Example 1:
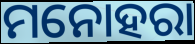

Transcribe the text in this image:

ମନୋହରା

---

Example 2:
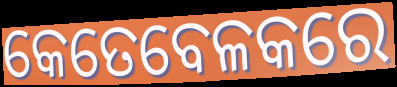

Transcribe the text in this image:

କେତେବେଳକରେ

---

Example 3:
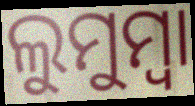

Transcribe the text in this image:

ଲୁମୁମ୍ବା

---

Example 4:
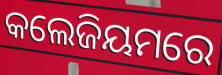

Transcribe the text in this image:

କଲେଜିୟମରେ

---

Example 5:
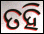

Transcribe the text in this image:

ତହି